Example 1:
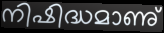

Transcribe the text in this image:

നിഷിദ്ധമാണു്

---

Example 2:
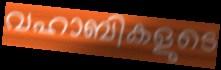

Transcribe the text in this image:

വഹാബികളുടെ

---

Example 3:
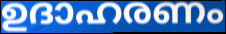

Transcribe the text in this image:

ഉദാഹരണം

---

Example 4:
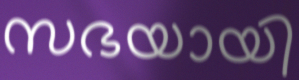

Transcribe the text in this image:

സഭയായി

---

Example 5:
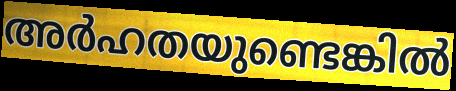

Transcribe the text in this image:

അർഹതയുണ്ടെങ്കിൽ